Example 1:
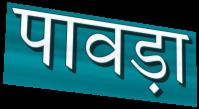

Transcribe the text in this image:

पावड़ा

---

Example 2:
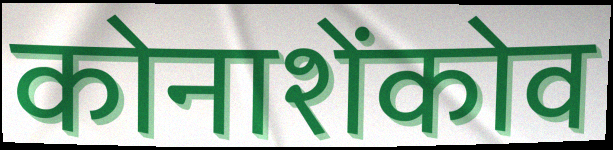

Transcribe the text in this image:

कोनाशेंकोव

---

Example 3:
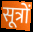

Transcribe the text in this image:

सूत्रों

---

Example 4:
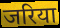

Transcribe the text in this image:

जरिया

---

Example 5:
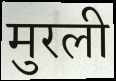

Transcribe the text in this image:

मुरली